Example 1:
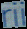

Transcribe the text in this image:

rii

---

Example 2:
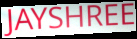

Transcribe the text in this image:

JAYSHREE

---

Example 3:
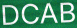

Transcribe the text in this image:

DCAB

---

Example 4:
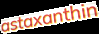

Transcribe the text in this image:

astaxanthin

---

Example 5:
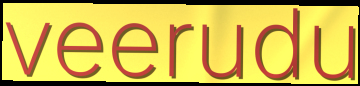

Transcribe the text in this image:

veerudu